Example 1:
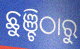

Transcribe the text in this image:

ଛୁଞ୍ଚିଠାରୁ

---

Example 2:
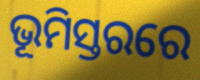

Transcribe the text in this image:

ଭୂମିସ୍ତରରେ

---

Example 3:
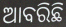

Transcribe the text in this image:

ଆବରିଛି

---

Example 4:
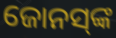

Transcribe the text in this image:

ଜୋନସ୍‌ଙ୍କ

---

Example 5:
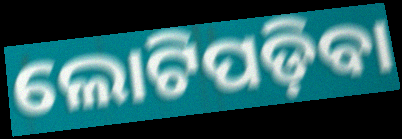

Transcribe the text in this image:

ଲୋଟିପଡ଼ିବା